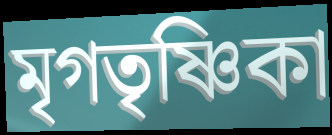
মৃগতৃষ্ণিকা